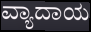
ವ್ಯಾದಾಯ